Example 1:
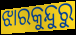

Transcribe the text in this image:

ଝାରକୁନ୍ଦୁରୁ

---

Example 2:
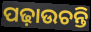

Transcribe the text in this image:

ପଢ଼ାଉଚନ୍ତି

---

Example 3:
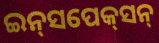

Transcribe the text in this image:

ଇନ୍‌ସପେକ୍‌ସନ୍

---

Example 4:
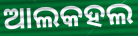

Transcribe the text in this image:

ଆଲକହଲ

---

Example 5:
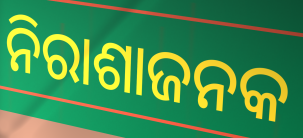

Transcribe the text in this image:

ନିରାଶାଜନକ